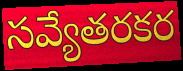
సవ్యేతరకర